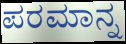
ಪರಮಾನ್ನ